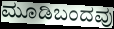
ಮೂಡಿಬಂದವು